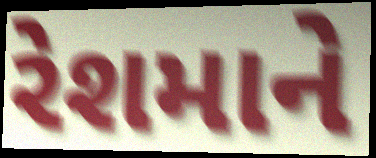
રેશમાને